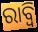
ରାବ୍ବି